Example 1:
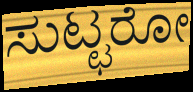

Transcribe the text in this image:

ಸುಟ್ಟರೋ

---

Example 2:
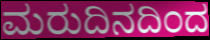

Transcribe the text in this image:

ಮರುದಿನದಿಂದ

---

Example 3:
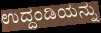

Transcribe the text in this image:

ಉದ್ದಂಡಿಯನ್ನು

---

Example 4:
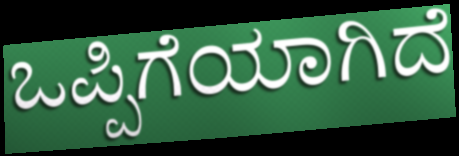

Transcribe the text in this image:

ಒಪ್ಪಿಗೆಯಾಗಿದೆ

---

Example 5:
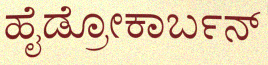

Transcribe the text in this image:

ಹೈಡ್ರೋಕಾರ್ಬನ್